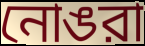
নোঙরা